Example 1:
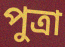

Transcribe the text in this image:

পুত্রা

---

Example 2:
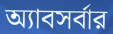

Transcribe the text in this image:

অ্যাবসর্বার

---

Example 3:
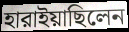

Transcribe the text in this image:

হারাইয়াছিলেন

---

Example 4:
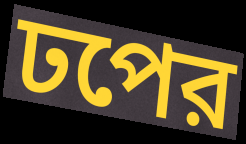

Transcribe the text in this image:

ঢপের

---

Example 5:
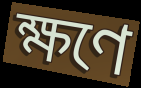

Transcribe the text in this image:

ক্ষণে